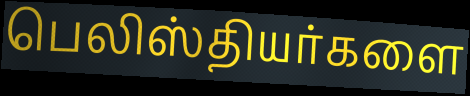
பெலிஸ்தியர்களை